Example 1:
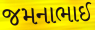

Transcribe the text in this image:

જમનાભાઈ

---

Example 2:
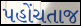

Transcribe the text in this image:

પહોંચતાજ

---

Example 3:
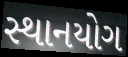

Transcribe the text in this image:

સ્થાનયોગ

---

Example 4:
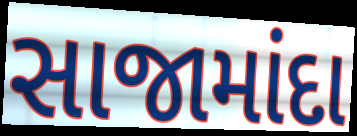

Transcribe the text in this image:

સાજામાંદા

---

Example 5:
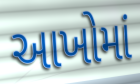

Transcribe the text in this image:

આખોમાં